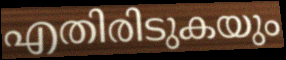
എതിരിടുകയും